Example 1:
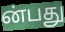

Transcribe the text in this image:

ன்பது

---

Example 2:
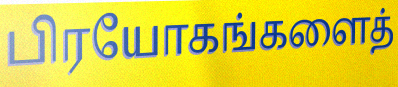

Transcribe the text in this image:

பிரயோகங்களைத்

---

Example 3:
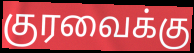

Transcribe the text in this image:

குரவைக்கு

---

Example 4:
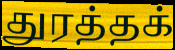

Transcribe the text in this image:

துரத்தக்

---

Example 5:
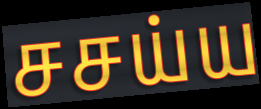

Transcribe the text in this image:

சசய்ய